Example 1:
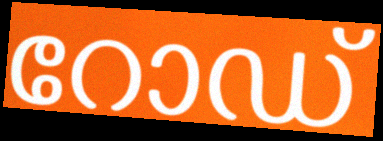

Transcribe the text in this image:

റോഡ്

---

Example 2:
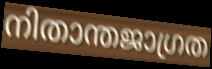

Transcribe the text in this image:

നിതാന്തജാഗ്രത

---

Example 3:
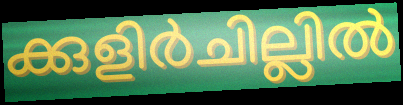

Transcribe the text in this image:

ക്കുളിർചില്ലിൽ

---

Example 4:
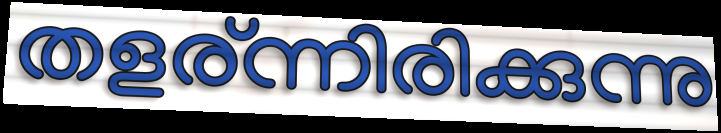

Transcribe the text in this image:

തളര്ന്നിരിക്കുന്നു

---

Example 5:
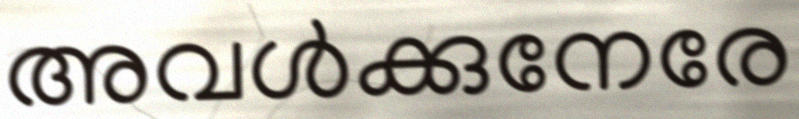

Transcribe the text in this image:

അവൾക്കുനേരേ